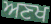
ਅਣਖ